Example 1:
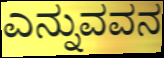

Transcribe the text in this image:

ಎನ್ನುವವನ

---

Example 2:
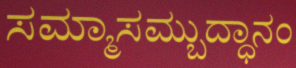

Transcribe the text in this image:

ಸಮ್ಮಾಸಮ್ಬುದ್ಧಾನಂ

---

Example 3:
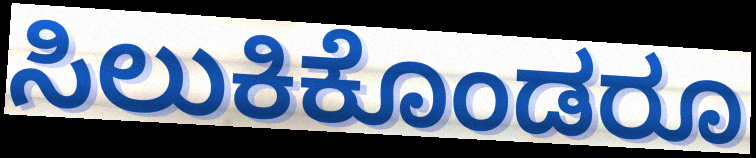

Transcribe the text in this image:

ಸಿಲುಕಿಕೊಂಡರೂ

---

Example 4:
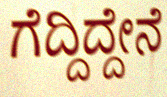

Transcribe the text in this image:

ಗೆದ್ದಿದ್ದೇನೆ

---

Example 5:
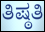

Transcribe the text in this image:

ತಿಷ್ಠತಿ